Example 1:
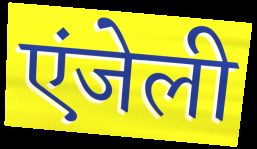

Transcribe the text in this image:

एंजेली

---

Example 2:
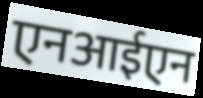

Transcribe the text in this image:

एनआईएन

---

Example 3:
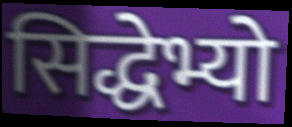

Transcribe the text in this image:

सिद्धेभ्यो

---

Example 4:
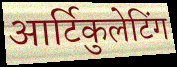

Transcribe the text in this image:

आर्टिकुलेटिंग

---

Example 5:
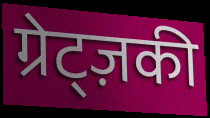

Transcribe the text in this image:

ग्रेट्ज़की